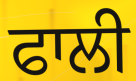
ਫਾਲੀ